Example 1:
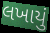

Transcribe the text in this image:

લખાયું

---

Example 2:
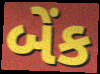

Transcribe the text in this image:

બેંક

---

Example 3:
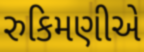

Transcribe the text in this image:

રુકિમણીએ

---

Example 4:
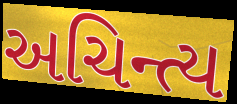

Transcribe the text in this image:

અચિન્ત્ય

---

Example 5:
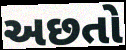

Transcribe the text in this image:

અછતો